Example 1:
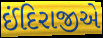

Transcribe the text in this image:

ઈંદિરાજીએ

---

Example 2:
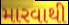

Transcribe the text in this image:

મારવાથી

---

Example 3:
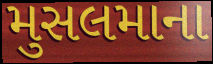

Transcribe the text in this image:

મુસલમાના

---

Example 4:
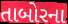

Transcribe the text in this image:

તાબોરના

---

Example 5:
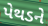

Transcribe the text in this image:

પેથડને